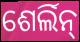
ଶେର୍ଲିନ୍